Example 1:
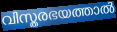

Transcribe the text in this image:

വിസ്തരഭയത്താൽ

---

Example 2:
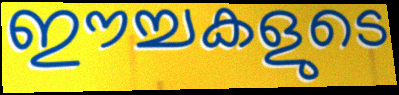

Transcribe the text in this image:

ഈച്ചകളുടെ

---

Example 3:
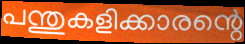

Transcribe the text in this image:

പന്തുകളിക്കാരന്റെ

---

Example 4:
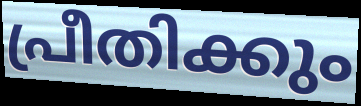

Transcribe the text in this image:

പ്രീതിക്കും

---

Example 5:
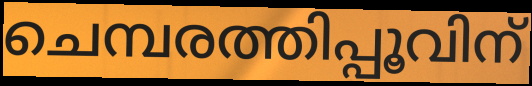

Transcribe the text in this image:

ചെമ്പരത്തിപ്പൂവിന്